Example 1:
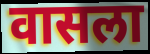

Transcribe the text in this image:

वासला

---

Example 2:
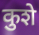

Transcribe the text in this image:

कुशे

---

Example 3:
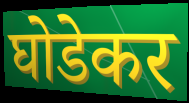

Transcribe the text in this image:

घोडेकर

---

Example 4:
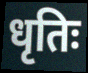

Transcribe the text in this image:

धृतिः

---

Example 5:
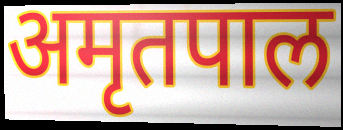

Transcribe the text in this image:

अमृतपाल